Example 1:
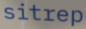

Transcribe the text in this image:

sitrep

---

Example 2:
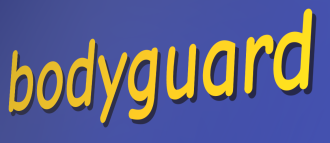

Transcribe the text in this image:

bodyguard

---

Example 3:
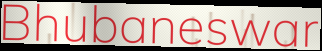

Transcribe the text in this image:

Bhubaneswar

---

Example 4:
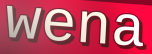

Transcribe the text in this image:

wena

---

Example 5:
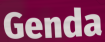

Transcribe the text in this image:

Genda